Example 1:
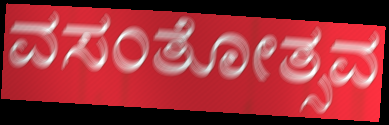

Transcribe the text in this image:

ವಸಂತೋತ್ಸವ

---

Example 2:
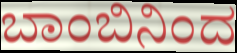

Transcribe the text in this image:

ಬಾಂಬಿನಿಂದ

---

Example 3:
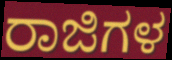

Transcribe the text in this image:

ರಾಜಿಗಳ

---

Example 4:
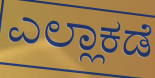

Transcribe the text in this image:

ಎಲ್ಲಾಕಡೆ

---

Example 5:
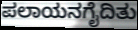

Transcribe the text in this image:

ಪಲಾಯನಗೈದಿತು